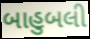
બાહુબલી